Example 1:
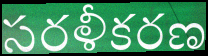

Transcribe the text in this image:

సరళీకరణ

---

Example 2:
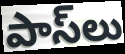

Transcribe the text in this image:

పాస్‌లు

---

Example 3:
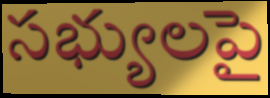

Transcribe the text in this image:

సభ్యులపై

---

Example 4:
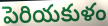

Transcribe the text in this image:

పెరియకుళం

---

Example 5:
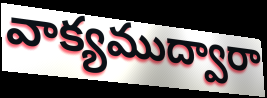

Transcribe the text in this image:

వాక్యముద్వారా